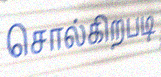
சொல்கிறபடி